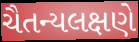
ચૈતન્યલક્ષણે